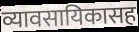
व्यावसायिकासह